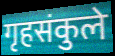
गृहसंकुले